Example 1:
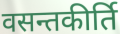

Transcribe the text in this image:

वसन्तकीर्ति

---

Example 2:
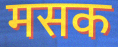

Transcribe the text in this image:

मसक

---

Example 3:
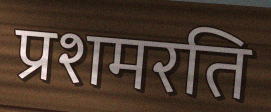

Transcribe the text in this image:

प्रशमरति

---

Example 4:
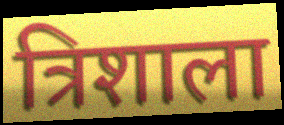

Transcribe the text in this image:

त्रिशाला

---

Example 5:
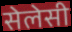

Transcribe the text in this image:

सेलेसी